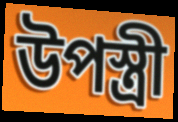
উপস্ত্রী